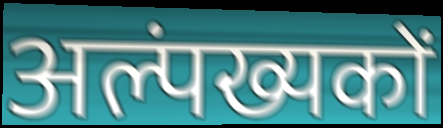
अल्पंख्यकों